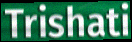
Trishati